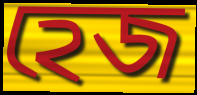
হেজ